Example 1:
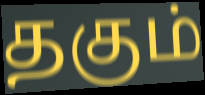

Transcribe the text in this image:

தகும்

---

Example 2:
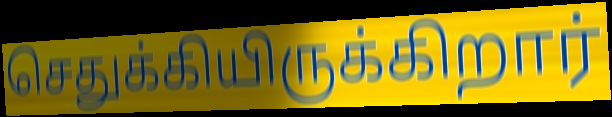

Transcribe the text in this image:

செதுக்கியிருக்கிறார்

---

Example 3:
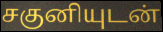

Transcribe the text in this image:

சகுனியுடன்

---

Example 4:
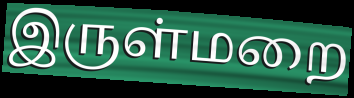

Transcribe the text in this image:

இருள்மறை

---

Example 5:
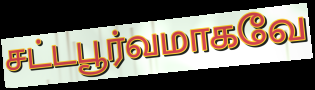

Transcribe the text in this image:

சட்டபூர்வமாகவே